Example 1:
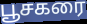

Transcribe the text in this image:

பூசகரை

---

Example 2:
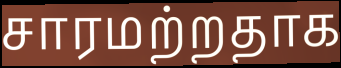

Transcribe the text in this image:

சாரமற்றதாக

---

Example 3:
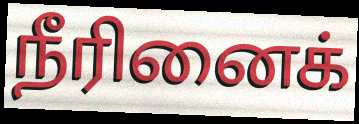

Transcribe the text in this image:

நீரினைக்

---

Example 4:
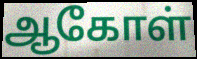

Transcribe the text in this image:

ஆகோள்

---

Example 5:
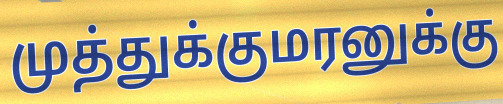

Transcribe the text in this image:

முத்துக்குமரனுக்கு